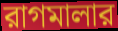
রাগমালার